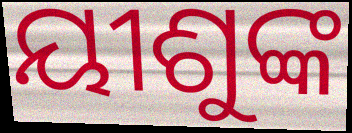
ୟୀଶୁଙ୍କ